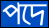
পদে